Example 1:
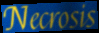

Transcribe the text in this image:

Necrosis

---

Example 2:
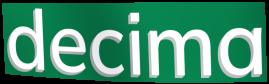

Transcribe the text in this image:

decima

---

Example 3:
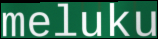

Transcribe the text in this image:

meluku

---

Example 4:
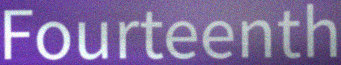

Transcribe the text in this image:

Fourteenth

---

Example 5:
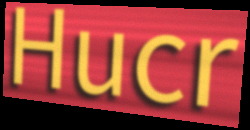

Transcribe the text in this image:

Hucr